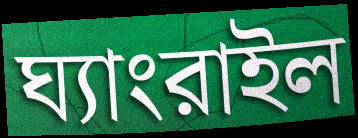
ঘ্যাংরাইল